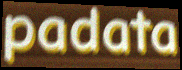
padata